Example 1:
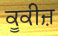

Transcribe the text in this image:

ਕੂਕੀਜ਼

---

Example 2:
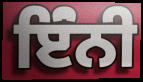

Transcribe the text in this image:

ਇੰਂਨੀ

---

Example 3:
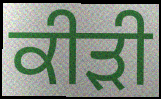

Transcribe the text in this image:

ਕੀੜੀ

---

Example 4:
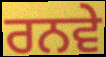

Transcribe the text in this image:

ਰਨਵੇ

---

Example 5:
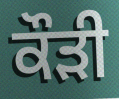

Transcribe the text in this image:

ਕੌੜੀ